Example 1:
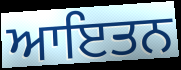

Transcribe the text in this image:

ਆਇਤਨ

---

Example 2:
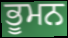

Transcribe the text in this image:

ਭੂਮਨ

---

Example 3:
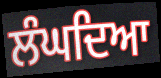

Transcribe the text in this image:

ਲੰਘਦਿਆ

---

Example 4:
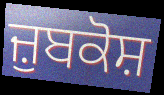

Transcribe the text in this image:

ਜ਼ੁਬਕੋਸ਼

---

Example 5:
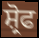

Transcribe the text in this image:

ਸ਼੍ਰੋਫ